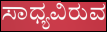
ಸಾಧ್ಯವಿರುವ